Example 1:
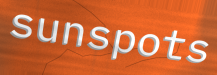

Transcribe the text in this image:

sunspots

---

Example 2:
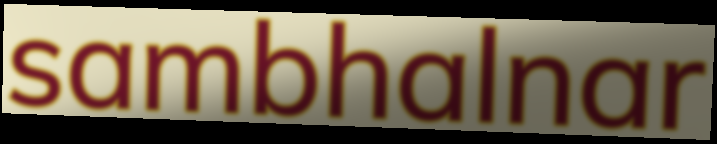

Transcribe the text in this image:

sambhalnar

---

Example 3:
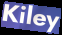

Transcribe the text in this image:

Kiley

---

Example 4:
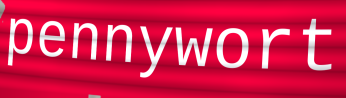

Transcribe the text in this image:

pennywort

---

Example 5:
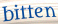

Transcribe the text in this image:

bitten